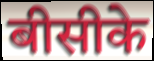
बीसीके